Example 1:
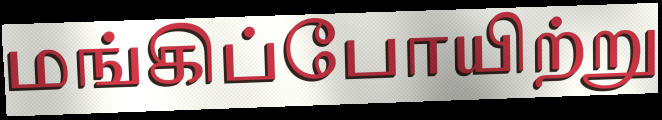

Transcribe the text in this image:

மங்கிப்போயிற்று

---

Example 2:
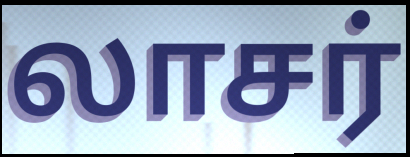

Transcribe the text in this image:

லாசர்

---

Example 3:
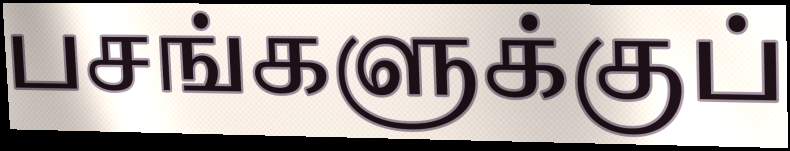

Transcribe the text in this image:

பசங்களுக்குப்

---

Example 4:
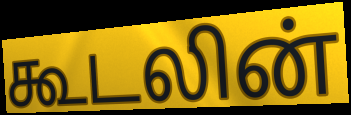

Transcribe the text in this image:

கூடலின்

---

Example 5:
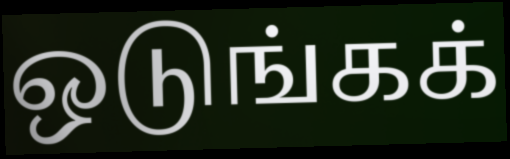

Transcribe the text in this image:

ஒடுங்கக்